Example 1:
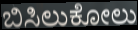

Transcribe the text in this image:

ಬಿಸಿಲುಕೋಲು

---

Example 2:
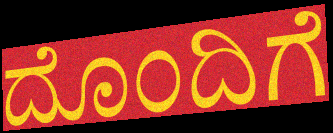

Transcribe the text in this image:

ದೊಂದಿಗೆ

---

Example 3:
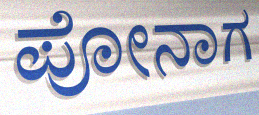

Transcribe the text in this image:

ಪೋನಾಗ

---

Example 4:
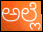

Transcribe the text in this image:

ಅಲ್ಲೆ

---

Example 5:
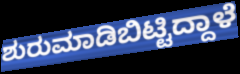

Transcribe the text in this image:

ಶುರುಮಾಡಿಬಿಟ್ಟಿದ್ದಾಳೆ